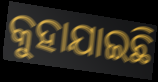
କୁହାଯାଇଛି